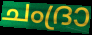
ചംദ്രാ